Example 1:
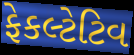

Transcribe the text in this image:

ફેકલ્ટેટિવ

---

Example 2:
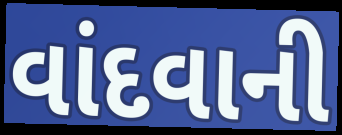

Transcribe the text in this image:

વાંદવાની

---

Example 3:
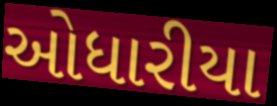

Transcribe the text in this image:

ઓધારીયા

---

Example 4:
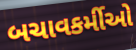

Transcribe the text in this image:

બચાવકર્મીઓ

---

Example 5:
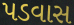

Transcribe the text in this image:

પડવાસ